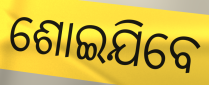
ଶୋଇଯିବେ